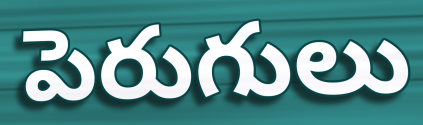
పెరుగులు